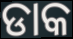
ଡାକ